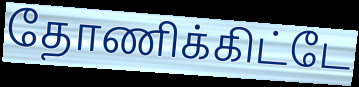
தோணிக்கிட்டே